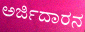
ಅರ್ಜಿದಾರನ